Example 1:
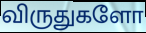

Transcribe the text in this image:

விருதுகளோ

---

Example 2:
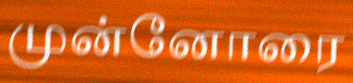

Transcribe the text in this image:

முன்னோரை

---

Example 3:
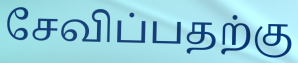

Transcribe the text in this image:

சேவிப்பதற்கு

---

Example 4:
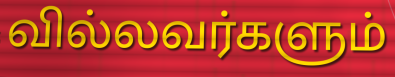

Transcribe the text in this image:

வில்லவர்களும்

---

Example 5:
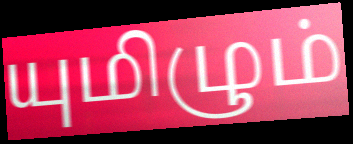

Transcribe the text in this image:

யுமிழும்